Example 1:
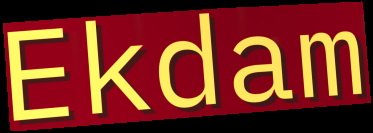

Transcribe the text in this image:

Ekdam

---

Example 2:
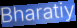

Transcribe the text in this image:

Bharatiy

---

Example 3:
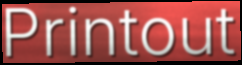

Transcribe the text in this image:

Printout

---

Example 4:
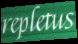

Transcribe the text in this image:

repletus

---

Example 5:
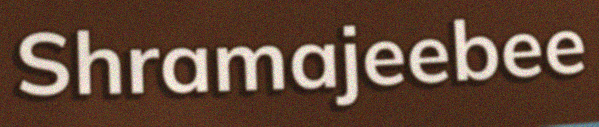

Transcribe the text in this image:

Shramajeebee